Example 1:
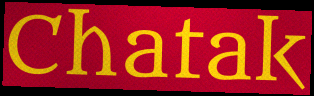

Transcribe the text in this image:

Chatak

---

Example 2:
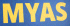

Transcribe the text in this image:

MYAS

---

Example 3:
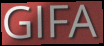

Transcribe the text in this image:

GIFA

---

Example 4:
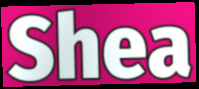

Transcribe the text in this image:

Shea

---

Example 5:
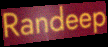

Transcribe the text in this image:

Randeep